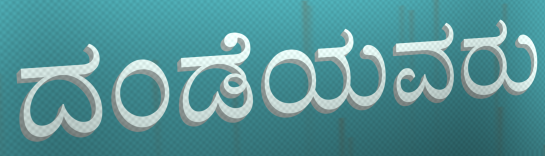
ದಂಡೆಯವರು